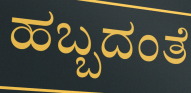
ಹಬ್ಬದಂತೆ